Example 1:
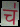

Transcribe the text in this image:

च॑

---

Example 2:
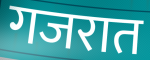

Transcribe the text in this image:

गजरात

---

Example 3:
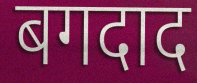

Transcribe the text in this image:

बगदाद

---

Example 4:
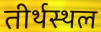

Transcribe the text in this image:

तीर्थस्थल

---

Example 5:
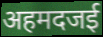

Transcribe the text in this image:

अहमदजई